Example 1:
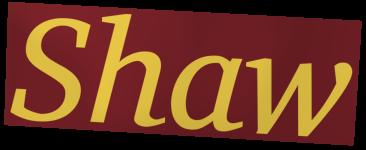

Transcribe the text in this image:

Shaw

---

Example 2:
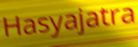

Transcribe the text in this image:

Hasyajatra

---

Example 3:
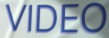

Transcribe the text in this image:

VIDEO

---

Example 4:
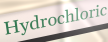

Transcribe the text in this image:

Hydrochloric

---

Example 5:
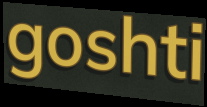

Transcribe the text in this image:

goshti